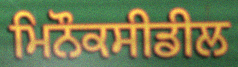
ਮਿਨੌਕਸੀਡੀਲ